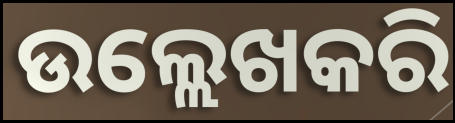
ଉଲ୍ଲେଖକରି